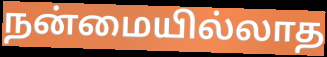
நன்மையில்லாத